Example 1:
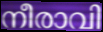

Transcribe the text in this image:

നീരാവി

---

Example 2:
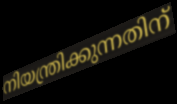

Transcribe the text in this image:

നിയന്ത്രിക്കുന്നതിന്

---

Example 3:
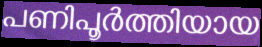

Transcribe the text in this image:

പണിപൂർത്തിയായ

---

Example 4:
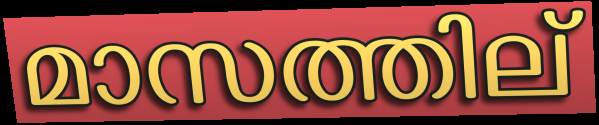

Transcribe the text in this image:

മാസത്തില്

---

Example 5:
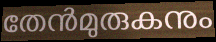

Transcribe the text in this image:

തേൻമുരുകനും